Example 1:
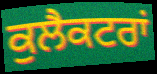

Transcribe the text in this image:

ਕੁਲੈਕਟਰਾਂ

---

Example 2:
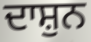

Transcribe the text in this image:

ਦਾਸ਼ੁਨ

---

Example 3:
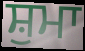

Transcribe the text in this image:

ਸ਼ੁਮਾ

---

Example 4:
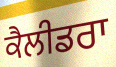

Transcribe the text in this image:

ਕੈਲੀਡਰਾ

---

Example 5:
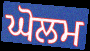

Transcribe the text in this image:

ਘੋਲਮ